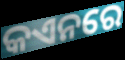
କଏନରେ